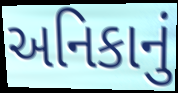
અનિકાનું